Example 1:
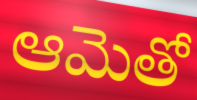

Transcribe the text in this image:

ఆమెతో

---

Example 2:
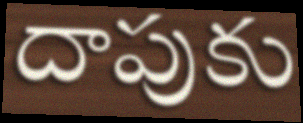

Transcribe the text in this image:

దాపుకు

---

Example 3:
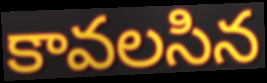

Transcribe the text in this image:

కావలసిన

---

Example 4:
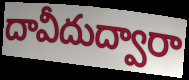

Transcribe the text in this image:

దావీదుద్వారా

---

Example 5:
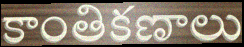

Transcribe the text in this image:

కాంతికణాలు